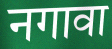
नगावा